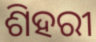
ଶିହରୀ